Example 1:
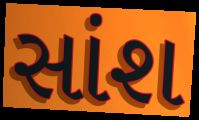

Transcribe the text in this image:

સાંશ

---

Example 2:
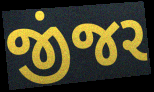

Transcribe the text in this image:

જીંજર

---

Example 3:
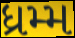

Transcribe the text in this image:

ધ્રમ્મ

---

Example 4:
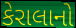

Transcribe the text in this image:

કેરાલાનો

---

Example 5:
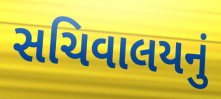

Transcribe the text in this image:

સચિવાલયનું